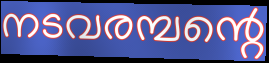
നടവരമ്പന്റെ